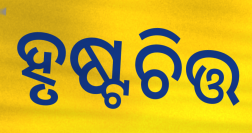
ହୃଷ୍ଟଚିତ୍ତ